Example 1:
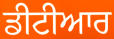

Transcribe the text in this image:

ਡੀਟੀਆਰ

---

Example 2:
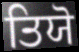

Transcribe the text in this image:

ਤਿਯੋ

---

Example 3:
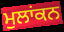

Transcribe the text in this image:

ਮੁਲਾਂਕਨ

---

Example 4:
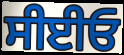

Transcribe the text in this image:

ਸੀਈਓ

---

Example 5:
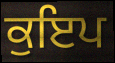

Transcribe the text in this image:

ਕੁਇਪ